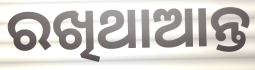
ରଖିଥାଆନ୍ତ